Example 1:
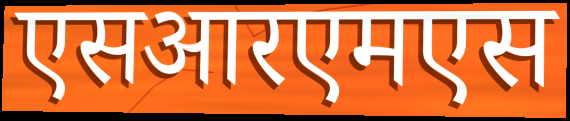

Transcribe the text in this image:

एसआरएमएस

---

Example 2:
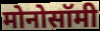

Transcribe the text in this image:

मोनोसॉमी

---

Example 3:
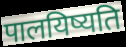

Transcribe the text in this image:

पालयिष्यति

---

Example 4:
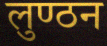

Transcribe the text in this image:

लुण्ठन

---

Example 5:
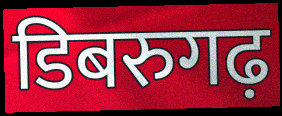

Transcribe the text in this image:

डिबरुगढ़